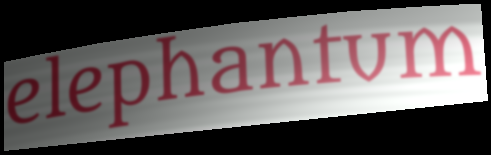
elephantum